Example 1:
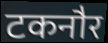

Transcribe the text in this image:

टकनौर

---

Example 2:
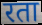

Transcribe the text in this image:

रता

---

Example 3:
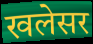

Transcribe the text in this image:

खलेसर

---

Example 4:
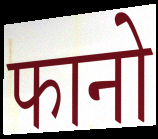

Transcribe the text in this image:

फानो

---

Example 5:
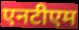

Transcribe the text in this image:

एनटीएम